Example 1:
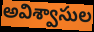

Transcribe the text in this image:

అవిశ్వాసుల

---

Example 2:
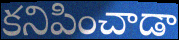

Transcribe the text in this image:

కనిపించాడా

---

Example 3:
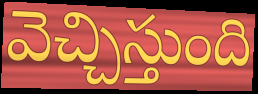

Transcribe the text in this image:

వెచ్చిస్తుంది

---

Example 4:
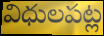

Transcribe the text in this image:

విధులపట్ల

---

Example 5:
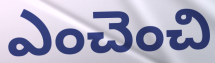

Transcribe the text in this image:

ఎంచెంచి